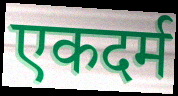
एकदर्म